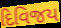
દિવિજય